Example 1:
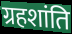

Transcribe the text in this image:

ग्रहशांति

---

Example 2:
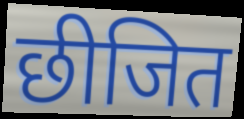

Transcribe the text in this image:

छीजित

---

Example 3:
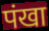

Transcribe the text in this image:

पंखा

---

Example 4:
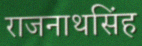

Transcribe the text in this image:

राजनाथसिंह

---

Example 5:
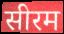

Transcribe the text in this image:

सीरम